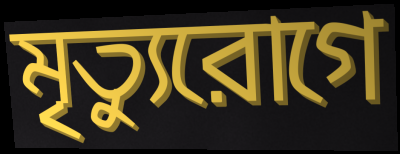
মৃত্যুরোগে